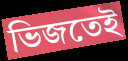
ভিজতেই